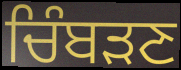
ਚਿੰਬੜਣ